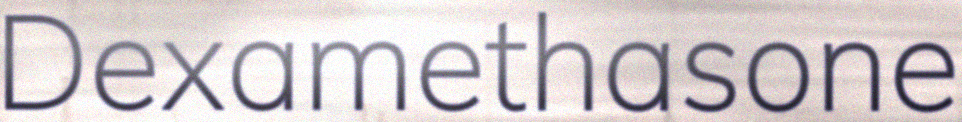
Dexamethasone